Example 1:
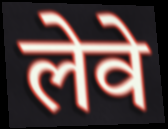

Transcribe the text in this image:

लेवे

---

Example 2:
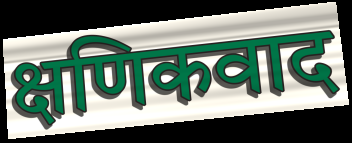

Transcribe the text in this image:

क्षणिकवाद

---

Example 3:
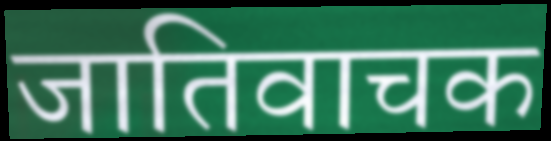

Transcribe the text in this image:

जातिवाचक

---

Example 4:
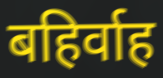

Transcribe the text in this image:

बहिर्वाह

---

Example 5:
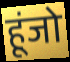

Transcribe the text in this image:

हूंजो